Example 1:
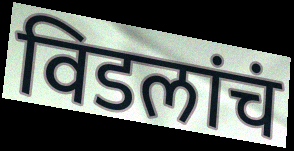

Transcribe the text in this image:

विडलांचं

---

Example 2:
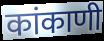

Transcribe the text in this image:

कांकाणी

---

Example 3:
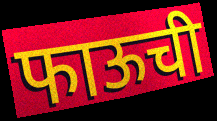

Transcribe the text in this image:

फाऊची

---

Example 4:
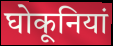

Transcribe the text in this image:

घोकूनियां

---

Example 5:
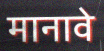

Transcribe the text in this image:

मानावे